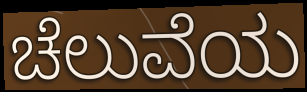
ಚೆಲುವೆಯ